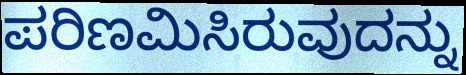
ಪರಿಣಮಿಸಿರುವುದನ್ನು